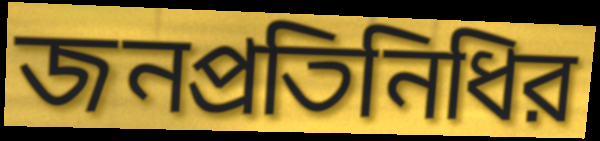
জনপ্রতিনিধির